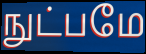
நுட்பமே